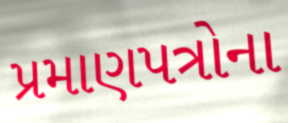
પ્રમાણપત્રોના